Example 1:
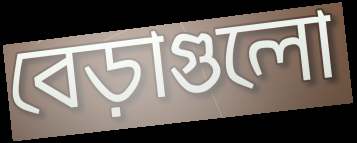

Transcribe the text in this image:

বেড়াগুলো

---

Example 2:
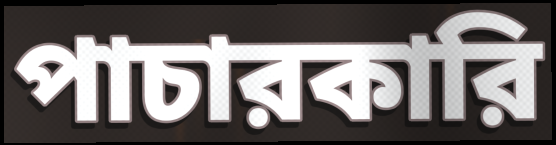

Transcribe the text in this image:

পাচারকারি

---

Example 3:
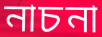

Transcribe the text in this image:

নাচনা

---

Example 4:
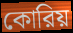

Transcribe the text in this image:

কোরিয়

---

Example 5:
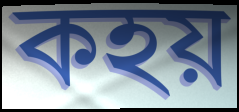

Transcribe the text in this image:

কহয়